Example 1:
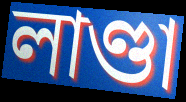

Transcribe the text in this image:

লাণ্ডা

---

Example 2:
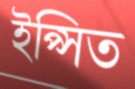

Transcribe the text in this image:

ইপ্সিত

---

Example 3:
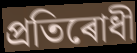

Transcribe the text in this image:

প্ৰতিৰোধী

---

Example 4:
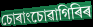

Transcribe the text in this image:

চোৰাংচোৱাগিৰিৰ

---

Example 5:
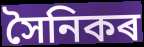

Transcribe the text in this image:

সৈনিকৰ